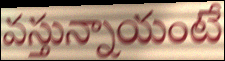
వస్తున్నాయంటే